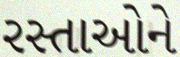
રસ્તાઓને